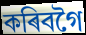
কৰিবগৈ